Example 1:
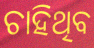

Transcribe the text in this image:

ଚାହିଥିବ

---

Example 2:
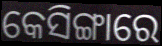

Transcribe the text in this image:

କେସିଙ୍ଗାରେ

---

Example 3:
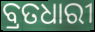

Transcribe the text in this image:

ବ୍ରତଧାରୀ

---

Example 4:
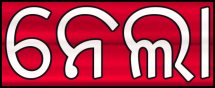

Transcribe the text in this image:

ନେଲା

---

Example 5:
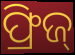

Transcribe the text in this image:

ଫ୍ରିଜ୍